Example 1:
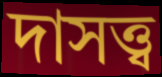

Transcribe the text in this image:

দাসত্ত্ব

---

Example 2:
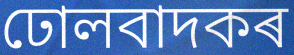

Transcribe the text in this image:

ঢোলবাদকৰ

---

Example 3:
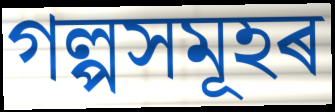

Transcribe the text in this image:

গল্পসমূহৰ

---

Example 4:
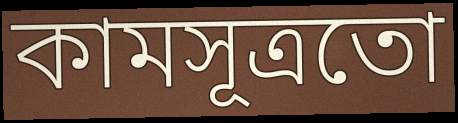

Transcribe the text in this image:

কামসূত্ৰতো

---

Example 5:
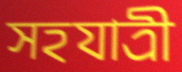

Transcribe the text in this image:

সহযাত্ৰী